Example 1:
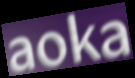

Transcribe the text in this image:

aoka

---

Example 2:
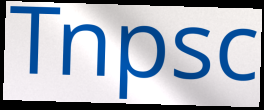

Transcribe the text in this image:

Tnpsc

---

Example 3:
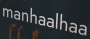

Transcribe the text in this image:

manhaalhaa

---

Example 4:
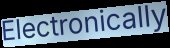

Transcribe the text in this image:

Electronically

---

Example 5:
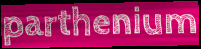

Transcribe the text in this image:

parthenium